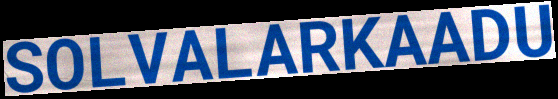
SOLVALARKAADU